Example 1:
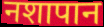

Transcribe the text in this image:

नशापान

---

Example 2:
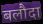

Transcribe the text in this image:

बलौदा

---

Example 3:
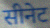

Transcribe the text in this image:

सीनेट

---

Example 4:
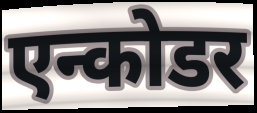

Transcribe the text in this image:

एन्कोडर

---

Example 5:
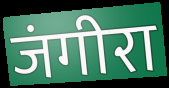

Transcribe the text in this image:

जंगीरा